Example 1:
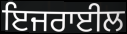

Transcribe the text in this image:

ਇਜਰਾਈਲ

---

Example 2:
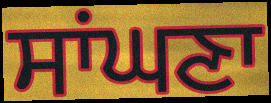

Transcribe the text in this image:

ਸਾਂਘਣਾ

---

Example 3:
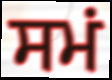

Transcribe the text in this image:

ਸਮਂ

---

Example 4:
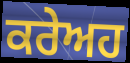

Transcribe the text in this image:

ਕਰੇਅਹ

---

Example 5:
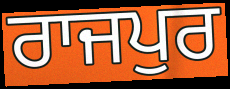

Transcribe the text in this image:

ਰਾਜਪੁਰ